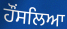
ਹੌਂਸਲਿਆ